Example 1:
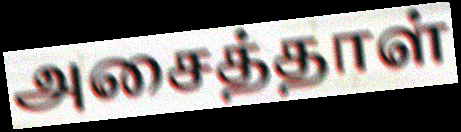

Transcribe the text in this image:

அசைத்தாள்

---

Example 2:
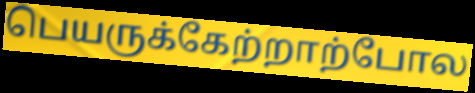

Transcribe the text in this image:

பெயருக்கேற்றாற்போல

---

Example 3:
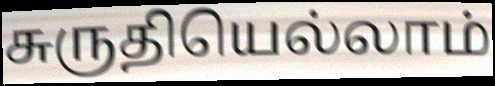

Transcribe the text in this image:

சுருதியெல்லாம்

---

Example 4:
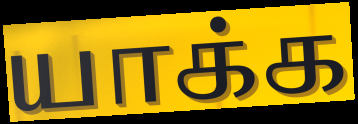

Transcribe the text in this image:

யாக்க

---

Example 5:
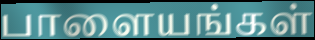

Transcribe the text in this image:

பாளையங்கள்